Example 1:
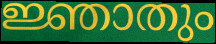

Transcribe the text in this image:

ജ്ഞാതും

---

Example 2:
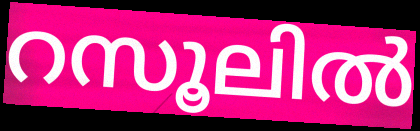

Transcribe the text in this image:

റസൂലിൽ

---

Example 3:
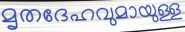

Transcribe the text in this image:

മൃതദേഹവുമായുള്ള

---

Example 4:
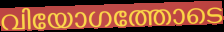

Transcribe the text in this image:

വിയോഗത്തോടെ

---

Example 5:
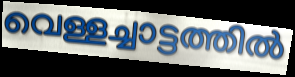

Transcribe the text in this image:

വെള്ളച്ചാട്ടത്തിൽ